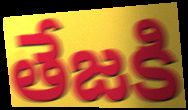
తేజకి